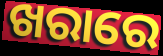
ଖରାରେ